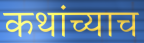
कथांच्याच